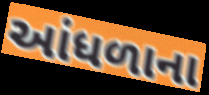
આંધળાના